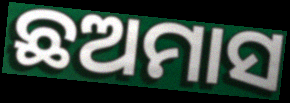
ଛଅମାସ